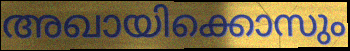
അഖായിക്കൊസും